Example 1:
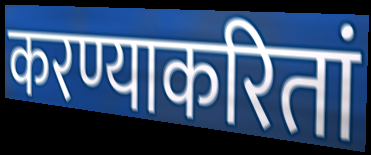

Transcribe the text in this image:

करण्याकरितां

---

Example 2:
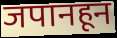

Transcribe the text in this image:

जपानहून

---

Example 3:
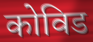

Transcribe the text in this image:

कोविड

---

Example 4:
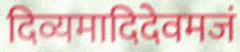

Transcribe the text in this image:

दिव्यमादिदेवमजं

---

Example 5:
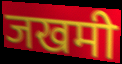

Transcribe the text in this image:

जखमी